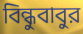
বিন্ধুবাবুর